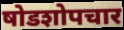
षोडशोपचार